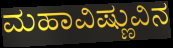
ಮಹಾವಿಷ್ಣುವಿನ